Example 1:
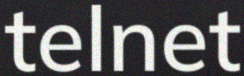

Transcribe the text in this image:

telnet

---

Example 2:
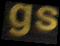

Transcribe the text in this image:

gs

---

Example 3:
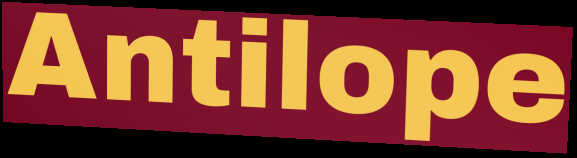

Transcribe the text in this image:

Antilope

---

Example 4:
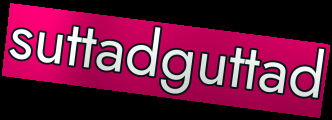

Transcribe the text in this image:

suttadguttad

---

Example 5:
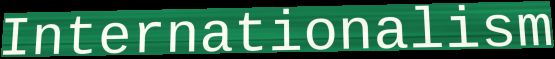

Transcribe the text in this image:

Internationalism